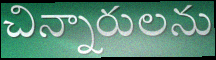
చిన్నారులను